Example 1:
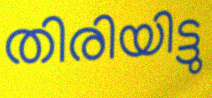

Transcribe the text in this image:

തിരിയിട്ടു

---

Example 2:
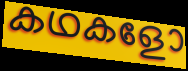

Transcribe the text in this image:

കഥകളോ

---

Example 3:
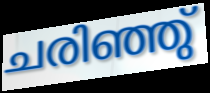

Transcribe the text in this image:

ചരിഞ്ഞു്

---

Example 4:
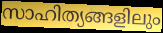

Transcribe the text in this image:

സാഹിത്യങ്ങളിലും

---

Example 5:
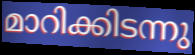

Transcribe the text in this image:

മാറിക്കിടന്നു